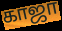
காஜா